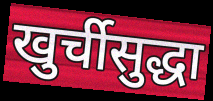
खुर्चीसुद्धा